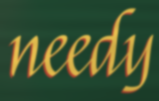
needy